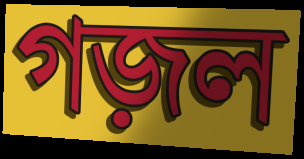
গজ়ল